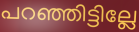
പറഞ്ഞിട്ടില്ലേ